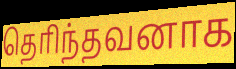
தெரிந்தவனாக